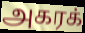
அகரக்